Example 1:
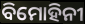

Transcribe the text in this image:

ବିମୋହିନୀ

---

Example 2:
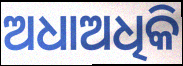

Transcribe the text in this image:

ଅଧାଅଧିକି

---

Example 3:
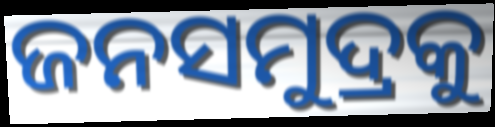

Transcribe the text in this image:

ଜନସମୁଦ୍ରକୁ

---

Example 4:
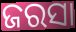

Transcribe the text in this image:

ଜରସା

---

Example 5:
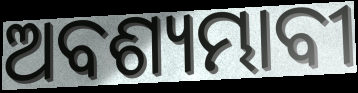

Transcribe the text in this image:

ଅବଶ୍ୟମ୍ଭାବୀ